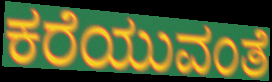
ಕರೆಯುವಂತೆ